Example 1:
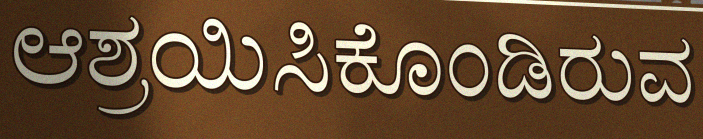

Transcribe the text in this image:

ಆಶ್ರಯಿಸಿಕೊಂಡಿರುವ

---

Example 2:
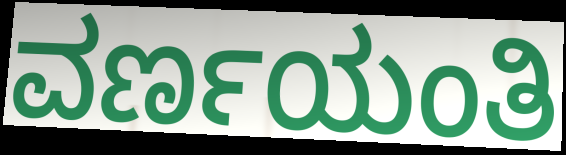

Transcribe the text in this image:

ವರ್ಣಯಂತಿ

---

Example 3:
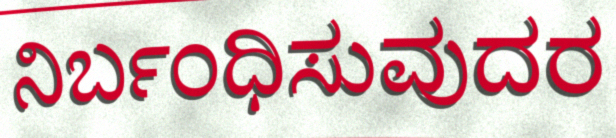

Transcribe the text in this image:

ನಿರ್ಬಂಧಿಸುವುದರ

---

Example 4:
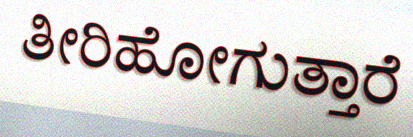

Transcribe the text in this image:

ತೀರಿಹೋಗುತ್ತಾರೆ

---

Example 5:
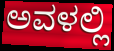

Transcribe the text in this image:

ಅವಳಲ್ಲಿ